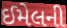
ઈમેલની